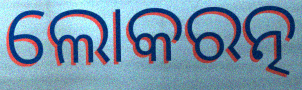
ଲୋକରତ୍ନ